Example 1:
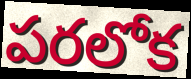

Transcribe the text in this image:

పరలోక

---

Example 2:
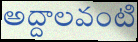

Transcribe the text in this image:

అద్దాలవంటి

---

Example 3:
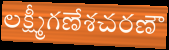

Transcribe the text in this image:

లక్ష్మీగణేశచరణౌ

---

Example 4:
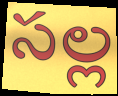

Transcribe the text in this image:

సల్ల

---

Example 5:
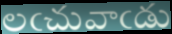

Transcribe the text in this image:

లఁచువాఁడు